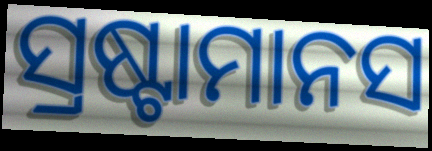
ସ୍ରଷ୍ଟାମାନସ